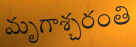
మృగాశ్చరంతి